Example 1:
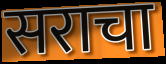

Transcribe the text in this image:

सराचा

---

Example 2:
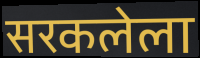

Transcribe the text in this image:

सरकलेला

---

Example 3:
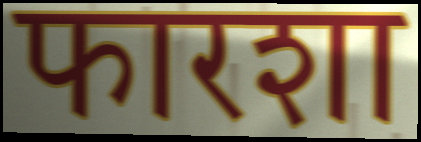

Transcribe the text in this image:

फारशा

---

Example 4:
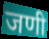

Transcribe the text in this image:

जणी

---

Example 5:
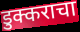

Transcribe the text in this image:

डुक्कराचा